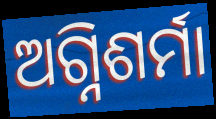
ଅଗ୍ନିଶର୍ମା